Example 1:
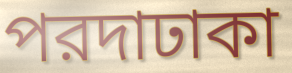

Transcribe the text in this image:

পরদাঢাকা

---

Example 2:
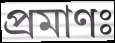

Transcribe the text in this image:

প্রমাণঃ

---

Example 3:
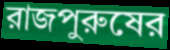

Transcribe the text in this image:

রাজপুরুষের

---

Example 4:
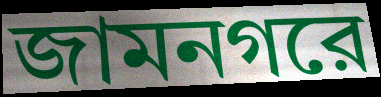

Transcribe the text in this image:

জামনগরে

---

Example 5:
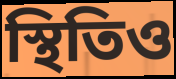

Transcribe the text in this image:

স্থিতিও